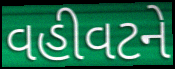
વહીવટને